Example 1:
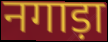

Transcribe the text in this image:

नगाड़ा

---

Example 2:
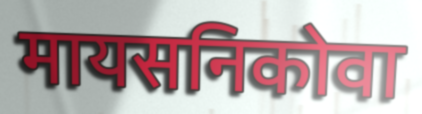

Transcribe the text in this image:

मायसनिकोवा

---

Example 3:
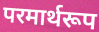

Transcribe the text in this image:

परमार्थरूप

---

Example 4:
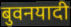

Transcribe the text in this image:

बुवनयादी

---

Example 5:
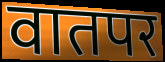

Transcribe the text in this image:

वातपर